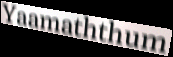
Yaamaththum